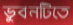
ভুবনটিতে